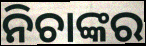
ନିଚାଙ୍କର